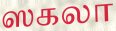
ஸகலா